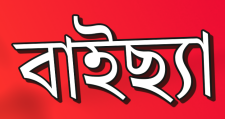
বাইছ্যা